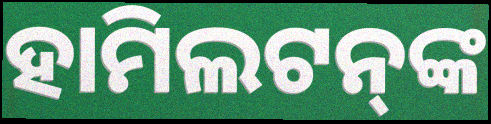
ହାମିଲଟନ୍‍ଙ୍କ